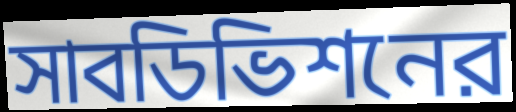
সাবডিভিশনের